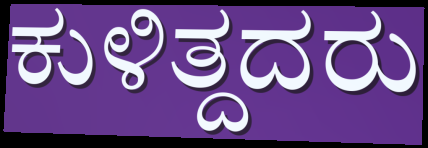
ಕುಳಿತ್ದದರು